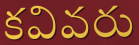
కవివరు